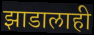
झाडालाही